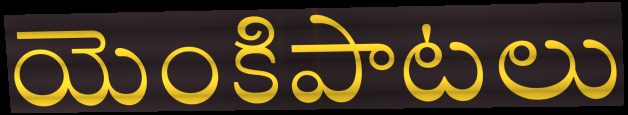
యెంకిపాటలు